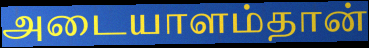
அடையாளம்தான்